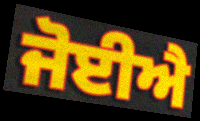
ਜੋਈਐ